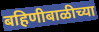
बहिणीबाळीच्या